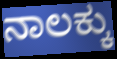
ನಾಲಕ್ಕು